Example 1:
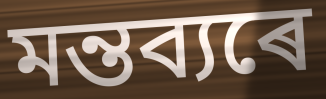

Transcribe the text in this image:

মন্তব্যৰে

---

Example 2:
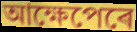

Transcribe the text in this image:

আক্ষেপেৰে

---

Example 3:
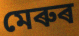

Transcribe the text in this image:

মেৰুৰ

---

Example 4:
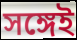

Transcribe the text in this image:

সঙ্গেই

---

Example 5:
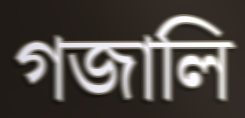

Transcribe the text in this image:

গজালি